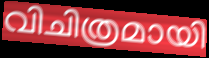
വിചിത്രമായി